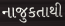
નાજુકતાથી